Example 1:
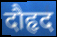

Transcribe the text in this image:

दौहृद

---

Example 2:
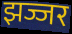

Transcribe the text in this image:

झज्जर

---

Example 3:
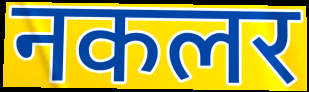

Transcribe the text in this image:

नकलर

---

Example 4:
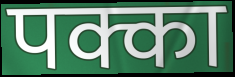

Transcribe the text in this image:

पक्का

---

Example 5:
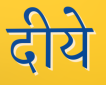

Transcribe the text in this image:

दीये